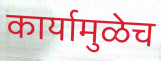
कार्यामुळेच